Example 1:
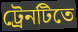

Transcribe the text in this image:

ট্রেনটিতে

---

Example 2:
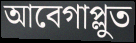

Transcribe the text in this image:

আবেগাপ্লুত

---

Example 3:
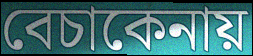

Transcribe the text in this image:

বেচাকেনায়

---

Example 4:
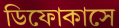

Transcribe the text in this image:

ডিফোকাসে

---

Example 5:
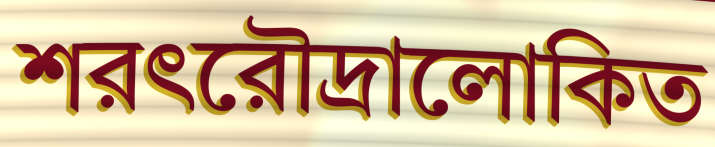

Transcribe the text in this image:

শরৎরৌদ্রালোকিত